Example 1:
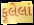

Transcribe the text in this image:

ફૂલેલાં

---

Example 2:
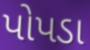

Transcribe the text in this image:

પોપડા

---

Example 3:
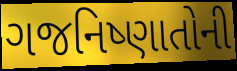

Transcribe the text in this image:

ગજનિષ્ણાતોની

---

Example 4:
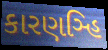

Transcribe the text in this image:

કારણઞ્હિ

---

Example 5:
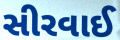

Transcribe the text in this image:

સીરવાઈ